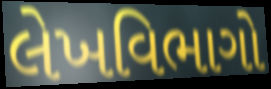
લેખવિભાગો